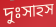
দুঃসাহস